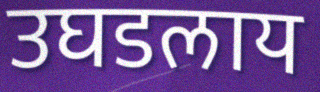
उघडलाय